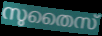
സുതൈസ്